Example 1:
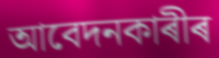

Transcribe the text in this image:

আবেদনকাৰীৰ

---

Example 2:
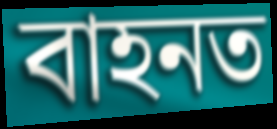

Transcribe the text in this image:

বাহনত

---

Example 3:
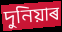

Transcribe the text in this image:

দুনিয়াৰ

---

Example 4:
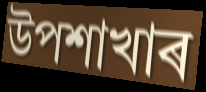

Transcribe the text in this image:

উপশাখাৰ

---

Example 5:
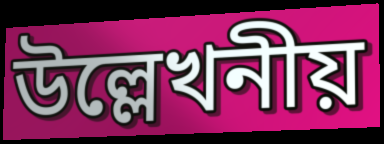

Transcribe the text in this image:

উল্লেখনীয়